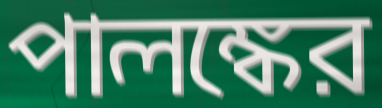
পালঙ্কের